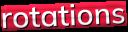
rotations